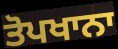
ਤੋਪਖਾਨਾ